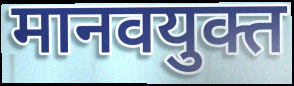
मानवयुक्त